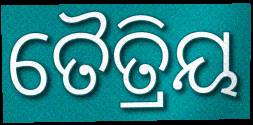
ତୈତ୍ରିୟ